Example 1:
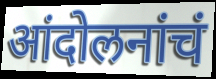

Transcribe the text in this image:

आंदोलनांचं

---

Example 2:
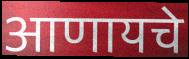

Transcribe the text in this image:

आणायचे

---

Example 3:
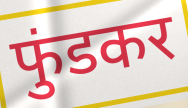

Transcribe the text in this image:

फुंडकर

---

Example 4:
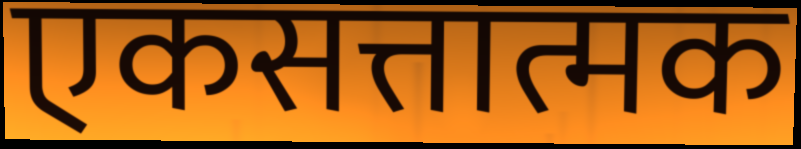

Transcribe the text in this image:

एकसत्तात्मक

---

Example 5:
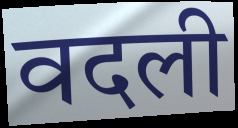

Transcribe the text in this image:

वदली